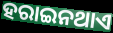
ହରାଇନଥାଏ